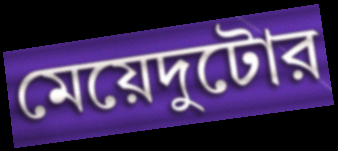
মেয়েদুটোর